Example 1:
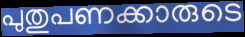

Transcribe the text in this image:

പുതുപണക്കാരുടെ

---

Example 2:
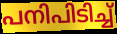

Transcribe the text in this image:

പനിപിടിച്ച്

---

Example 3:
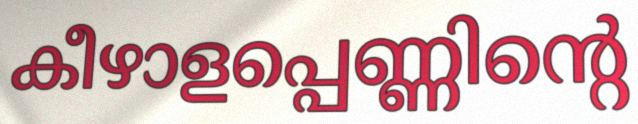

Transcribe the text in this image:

കീഴാളപ്പെണ്ണിന്റെ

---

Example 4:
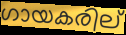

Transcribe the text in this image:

ഗായകരില്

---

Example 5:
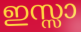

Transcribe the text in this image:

ഇസ്സാ